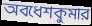
অবধেশকুমার